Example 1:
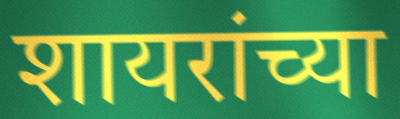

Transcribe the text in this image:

शायरांच्या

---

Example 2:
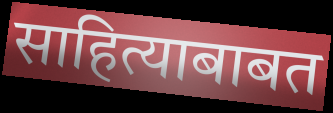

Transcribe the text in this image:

साहित्याबाबत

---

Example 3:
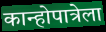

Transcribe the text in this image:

कान्होपात्रेला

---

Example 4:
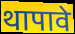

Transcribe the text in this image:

थापावे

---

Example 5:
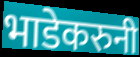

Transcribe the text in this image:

भाडेकरुनी